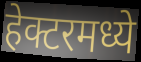
हेक्टरमध्ये